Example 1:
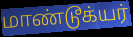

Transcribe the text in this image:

மாண்டூக்யர்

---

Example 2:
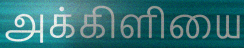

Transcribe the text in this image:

அக்கிளியை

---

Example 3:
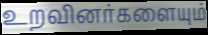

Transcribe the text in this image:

உறவினர்களையும்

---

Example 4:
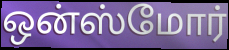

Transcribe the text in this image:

ஒன்ஸ்மோர்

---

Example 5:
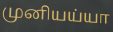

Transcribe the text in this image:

முனியய்யா